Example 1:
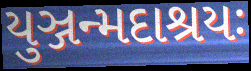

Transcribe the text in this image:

યુઞ્જન્મદાશ્રયઃ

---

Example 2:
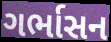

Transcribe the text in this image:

ગર્ભાસન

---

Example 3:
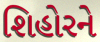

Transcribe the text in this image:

શિહોરને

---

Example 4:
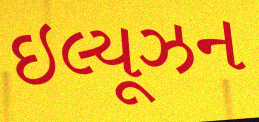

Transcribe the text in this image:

ઇલ્યૂઝન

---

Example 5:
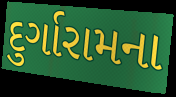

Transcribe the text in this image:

દુર્ગારામના